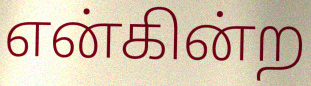
என்கின்ற